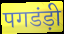
पगडंड़ी